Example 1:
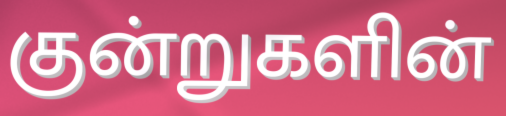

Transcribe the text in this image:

குன்றுகளின்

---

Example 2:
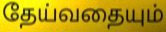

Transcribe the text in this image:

தேய்வதையும்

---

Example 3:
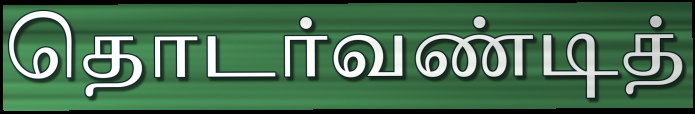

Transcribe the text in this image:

தொடர்வண்டித்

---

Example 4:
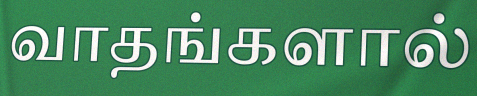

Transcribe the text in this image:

வாதங்களால்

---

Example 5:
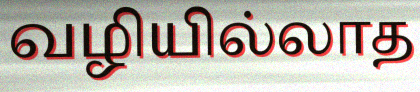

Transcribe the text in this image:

வழியில்லாத